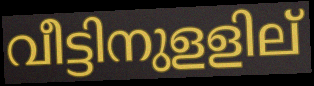
വീട്ടിനുളളില്